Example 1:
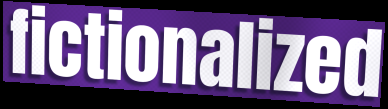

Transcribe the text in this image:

fictionalized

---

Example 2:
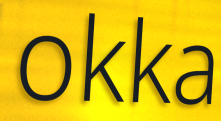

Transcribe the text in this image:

okka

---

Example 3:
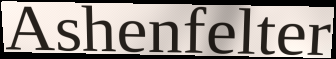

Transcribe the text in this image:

Ashenfelter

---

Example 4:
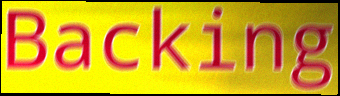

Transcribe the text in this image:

Backing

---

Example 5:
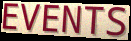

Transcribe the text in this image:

EVENTS